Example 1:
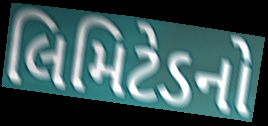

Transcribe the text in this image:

લિમિટેડનો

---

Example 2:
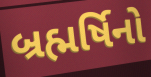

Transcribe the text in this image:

બ્રહ્મર્ષિનો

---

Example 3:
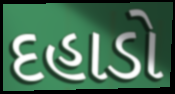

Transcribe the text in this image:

દહાડો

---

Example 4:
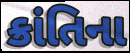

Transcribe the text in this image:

ક્રાંતિના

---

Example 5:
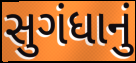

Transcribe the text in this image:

સુગંધાનું